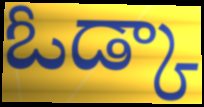
ఓడ్కా